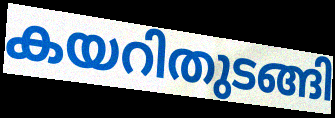
കയറിതുടങ്ങി